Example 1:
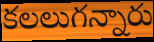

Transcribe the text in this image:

కలలుగన్నారు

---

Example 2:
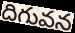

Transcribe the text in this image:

దిగువన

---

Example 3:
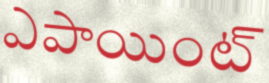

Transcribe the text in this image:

ఎపాయింట్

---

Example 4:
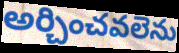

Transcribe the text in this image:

అర్చించవలెను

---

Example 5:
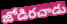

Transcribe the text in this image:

జోడిరచాడు